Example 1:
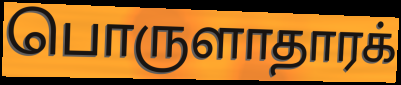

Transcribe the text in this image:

பொருளாதாரக்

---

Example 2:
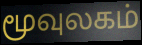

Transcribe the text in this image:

மூவுலகம்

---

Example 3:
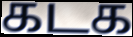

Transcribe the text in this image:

கடக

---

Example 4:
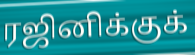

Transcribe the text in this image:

ரஜினிக்குக்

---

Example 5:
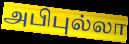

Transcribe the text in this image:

அபிபுல்லா